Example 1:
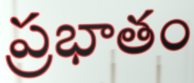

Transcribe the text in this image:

ప్రభాతం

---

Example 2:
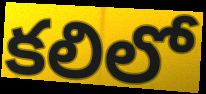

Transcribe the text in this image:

కలిలో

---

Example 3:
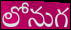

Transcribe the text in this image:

లోనుగ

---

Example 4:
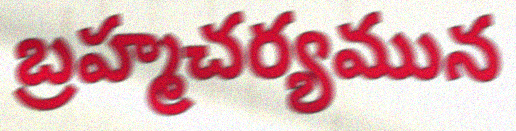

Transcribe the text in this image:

బ్రహ్మచర్యమున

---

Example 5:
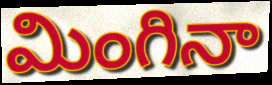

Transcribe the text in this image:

మింగినా